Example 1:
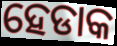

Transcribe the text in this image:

ହେଡାକ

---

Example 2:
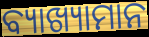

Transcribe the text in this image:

ବ୍ୟାଖ୍ୟାମାନ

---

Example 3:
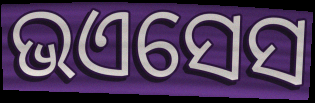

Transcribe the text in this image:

ଭଏସେସ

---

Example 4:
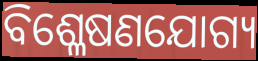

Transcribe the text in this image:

ବିଶ୍ଳେଷଣଯୋଗ୍ୟ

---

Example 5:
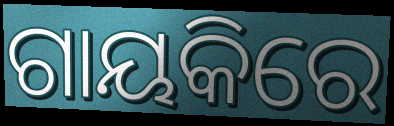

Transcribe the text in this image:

ଗାୟକିରେ